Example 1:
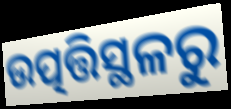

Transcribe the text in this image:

ଉତ୍ପତ୍ତିସ୍ଥଳରୁ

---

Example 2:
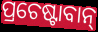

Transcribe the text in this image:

ପ୍ରଚେଷ୍ଟାବାନ୍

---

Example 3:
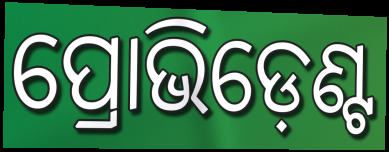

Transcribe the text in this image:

ପ୍ରୋଭିଡ଼େଣ୍ଟ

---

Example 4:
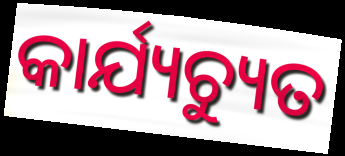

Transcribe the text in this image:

କାର୍ଯ୍ୟଚ୍ୟୁତ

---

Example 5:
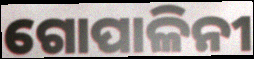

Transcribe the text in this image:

ଗୋପାଳିନୀ